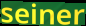
seiner